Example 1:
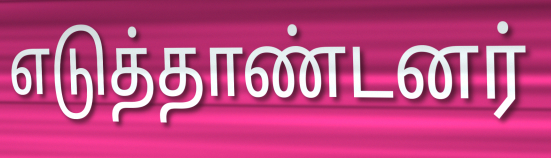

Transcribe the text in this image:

எடுத்தாண்டனர்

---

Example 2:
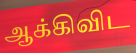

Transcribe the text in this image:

ஆக்கிவிட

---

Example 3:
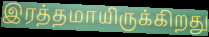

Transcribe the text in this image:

இரத்தமாயிருக்கிறது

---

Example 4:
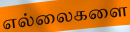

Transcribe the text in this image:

எல்லைகளை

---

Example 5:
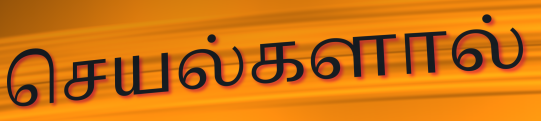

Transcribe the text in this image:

செயல்களால்